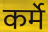
कर्मे